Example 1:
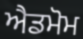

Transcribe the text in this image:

ਐਡਮੋਮ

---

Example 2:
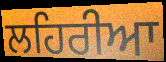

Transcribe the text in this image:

ਲਹਿਰੀਆ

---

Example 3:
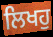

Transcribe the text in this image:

ਲਿਖਹੁ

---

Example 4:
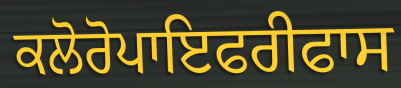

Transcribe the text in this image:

ਕਲੋਰੋਪਾਇਫਰੀਫਾਸ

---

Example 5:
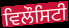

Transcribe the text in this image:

ਵਿਲੌਸਿਟੀ